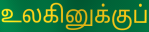
உலகினுக்குப்